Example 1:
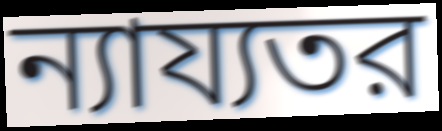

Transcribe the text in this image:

ন্যায্যতর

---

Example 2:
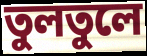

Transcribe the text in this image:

তুলতুলে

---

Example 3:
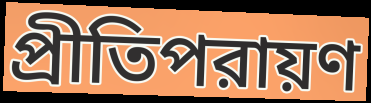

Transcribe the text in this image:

প্রীতিপরায়ণ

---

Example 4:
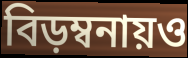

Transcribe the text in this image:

বিড়ম্বনায়ও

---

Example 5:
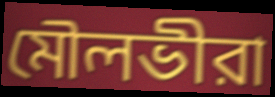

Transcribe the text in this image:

মৌলভীরা